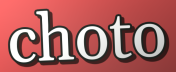
choto